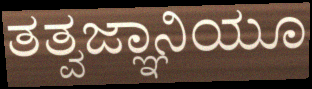
ತತ್ವಜ್ಞಾನಿಯೂ